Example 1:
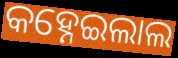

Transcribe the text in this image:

କହ୍ନେଇଲାଲ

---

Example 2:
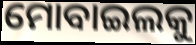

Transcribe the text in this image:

ମୋବାଇଲକୁ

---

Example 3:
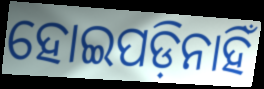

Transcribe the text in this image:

ହୋଇପଡ଼ିନାହିଁ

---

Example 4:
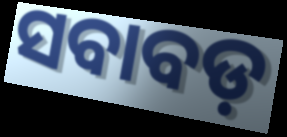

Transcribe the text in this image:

ସବାବଡ଼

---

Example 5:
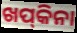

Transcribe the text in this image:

ଖପ୍‌କିନା